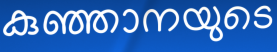
കുഞ്ഞാനയുടെ